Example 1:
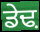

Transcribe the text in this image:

ਡੇਢ਼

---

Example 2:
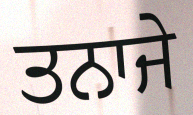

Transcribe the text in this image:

ਤਨਾਜੇ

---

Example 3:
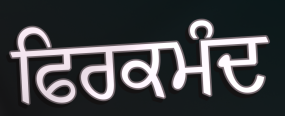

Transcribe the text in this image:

ਫਿਰਕਮੰਦ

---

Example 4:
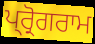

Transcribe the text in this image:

ਪ੍ਰ੍ਰੋਗਰਾਮ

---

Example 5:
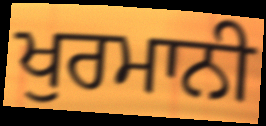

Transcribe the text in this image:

ਖੁਰਮਾਨੀ